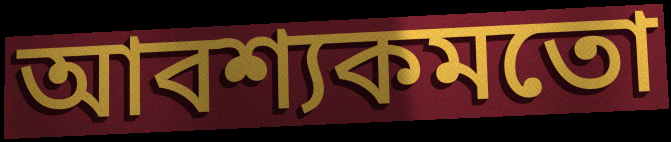
আবশ্যকমতো